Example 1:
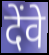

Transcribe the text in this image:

देंवे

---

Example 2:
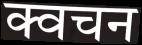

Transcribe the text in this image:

क्वचन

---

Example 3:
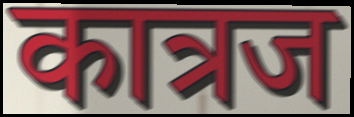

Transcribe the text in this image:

कात्रज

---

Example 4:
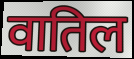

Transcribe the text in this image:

वातिल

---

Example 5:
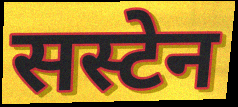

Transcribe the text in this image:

सस्टेन